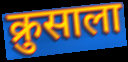
क्रुसाला